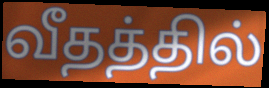
வீதத்தில்